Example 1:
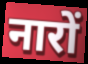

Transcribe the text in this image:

नारों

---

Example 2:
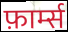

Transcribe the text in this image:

फ़ार्म्स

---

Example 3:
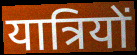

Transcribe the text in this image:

यात्रियों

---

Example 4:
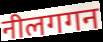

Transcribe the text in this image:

नीलगगन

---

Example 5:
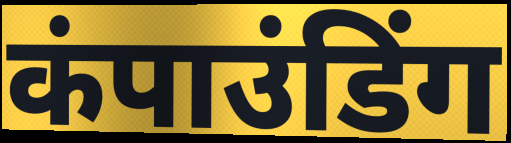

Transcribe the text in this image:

कंपाउंडिंग